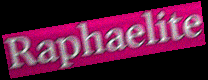
Raphaelite